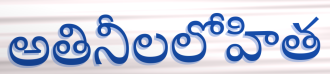
అతినీలలోహిత